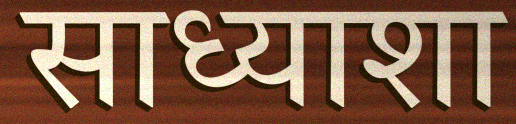
साध्याशा